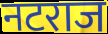
नटराज